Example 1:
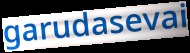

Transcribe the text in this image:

garudasevai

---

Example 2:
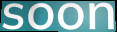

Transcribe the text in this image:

soon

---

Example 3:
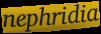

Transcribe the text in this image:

nephridia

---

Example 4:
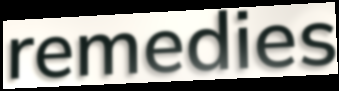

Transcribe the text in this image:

remedies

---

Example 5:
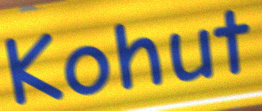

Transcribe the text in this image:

Kohut